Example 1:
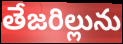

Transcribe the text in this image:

తేజరిల్లును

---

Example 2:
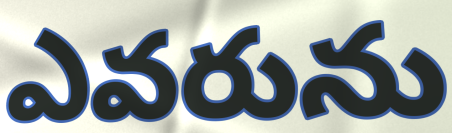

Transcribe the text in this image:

ఎవరును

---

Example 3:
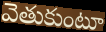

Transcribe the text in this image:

వెతుకుంటూ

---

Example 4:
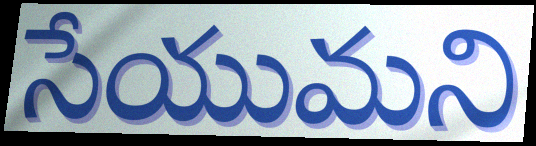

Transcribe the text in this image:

సేయుమని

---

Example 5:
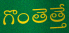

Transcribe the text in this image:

గొంతెత్తే